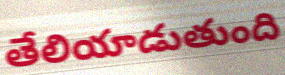
తేలియాడుతుంది